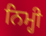
ਨਿਮ੍ਹੀ